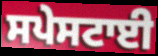
ਸਪੇਸਟਾਈ